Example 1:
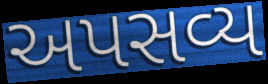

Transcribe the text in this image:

અપસવ્ય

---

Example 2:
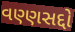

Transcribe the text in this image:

વણ્ણસદ્દો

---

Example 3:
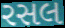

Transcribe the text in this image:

રસલ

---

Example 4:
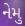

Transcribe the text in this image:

નેમુ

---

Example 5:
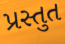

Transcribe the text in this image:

પ્રસ્તુત